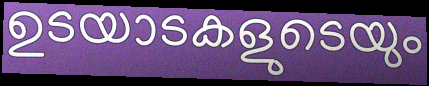
ഉടയാടകളുടെയും